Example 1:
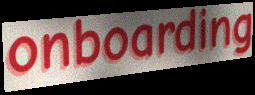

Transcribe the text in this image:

onboarding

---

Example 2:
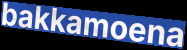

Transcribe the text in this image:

bakkamoena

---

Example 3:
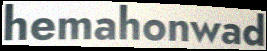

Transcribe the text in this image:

hemahonwad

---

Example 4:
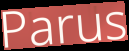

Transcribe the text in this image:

Parus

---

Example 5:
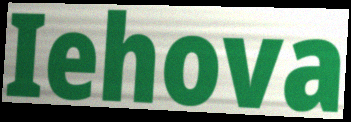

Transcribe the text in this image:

Iehova